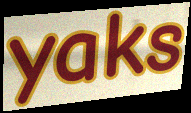
yaks